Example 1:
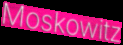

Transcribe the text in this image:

Moskowitz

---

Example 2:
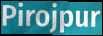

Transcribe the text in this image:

Pirojpur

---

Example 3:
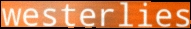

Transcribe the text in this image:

westerlies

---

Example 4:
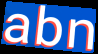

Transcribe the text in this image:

abn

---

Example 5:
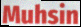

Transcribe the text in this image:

Muhsin